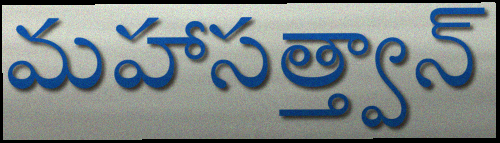
మహాసత్త్వాన్